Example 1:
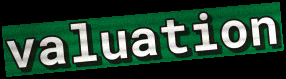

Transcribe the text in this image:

valuation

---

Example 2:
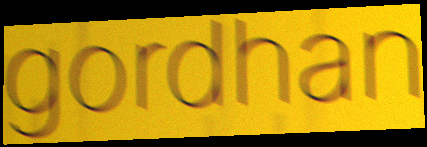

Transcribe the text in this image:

gordhan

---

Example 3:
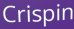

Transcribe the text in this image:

Crispin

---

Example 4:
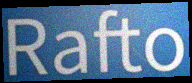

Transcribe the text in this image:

Rafto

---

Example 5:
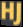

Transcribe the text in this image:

HJ